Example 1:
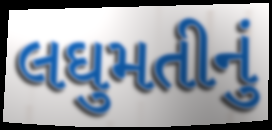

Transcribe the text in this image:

લઘુમતીનું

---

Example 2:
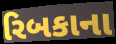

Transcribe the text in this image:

રિબકાના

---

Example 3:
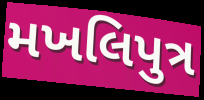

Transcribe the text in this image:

મખલિપુત્ર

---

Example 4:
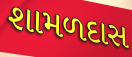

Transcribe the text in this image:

શામળદાસ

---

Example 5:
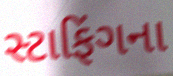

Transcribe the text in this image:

સ્ટાફિંગના